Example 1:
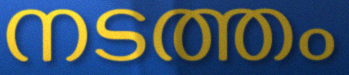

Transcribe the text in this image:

നടത്തം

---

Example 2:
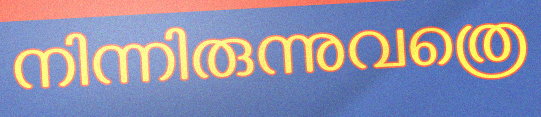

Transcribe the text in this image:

നിന്നിരുന്നുവത്രെ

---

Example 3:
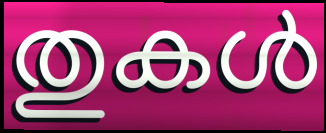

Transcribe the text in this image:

തുകൾ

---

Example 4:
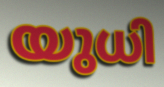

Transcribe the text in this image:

യുധി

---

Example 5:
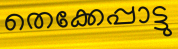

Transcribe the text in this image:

തെക്കേപ്പാട്ടു